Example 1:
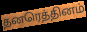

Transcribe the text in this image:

தனரெத்தினம்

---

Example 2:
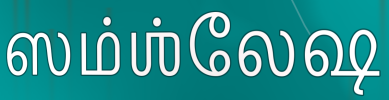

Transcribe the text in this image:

ஸம்ஶ்லேஷ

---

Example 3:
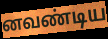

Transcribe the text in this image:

னவண்டிய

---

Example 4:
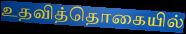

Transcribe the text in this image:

உதவித்தொகையில்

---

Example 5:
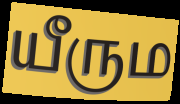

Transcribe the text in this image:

யீரும